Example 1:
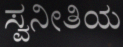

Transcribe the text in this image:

ಸ್ವನೀತಿಯ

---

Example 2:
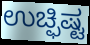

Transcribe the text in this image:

ಉಚ್ಫಿಷ್ಟ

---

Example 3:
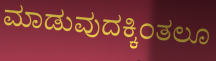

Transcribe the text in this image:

ಮಾಡುವುದಕ್ಕಿಂತಲೂ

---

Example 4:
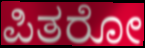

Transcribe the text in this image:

ಪಿತರೋ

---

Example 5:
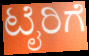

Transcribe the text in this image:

ಟೈರಿಗೆ